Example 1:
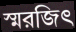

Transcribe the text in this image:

স্মরজিৎ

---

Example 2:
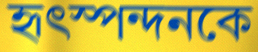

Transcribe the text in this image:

হৃৎস্পন্দনকে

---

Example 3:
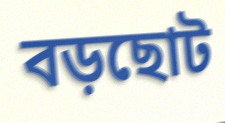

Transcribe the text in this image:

বড়ছোট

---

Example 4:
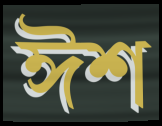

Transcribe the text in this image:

ঈশ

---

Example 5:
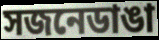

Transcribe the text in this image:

সজনেডাঙা